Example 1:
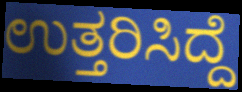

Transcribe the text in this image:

ಉತ್ತರಿಸಿದ್ದೆ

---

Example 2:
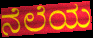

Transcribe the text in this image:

ನೆಲೆಯ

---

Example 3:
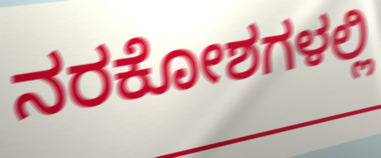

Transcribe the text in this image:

ನರಕೋಶಗಳಲ್ಲಿ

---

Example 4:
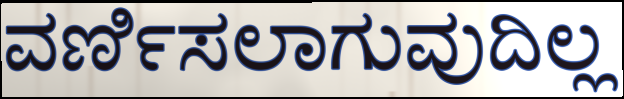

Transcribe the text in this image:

ವರ್ಣಿಸಲಾಗುವುದಿಲ್ಲ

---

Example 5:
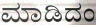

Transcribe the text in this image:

ಮಾಡಿದಂ